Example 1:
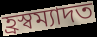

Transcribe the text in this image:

হ্ৰস্বম্যাদত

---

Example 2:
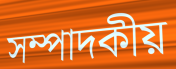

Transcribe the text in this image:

সম্পাদকীয়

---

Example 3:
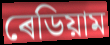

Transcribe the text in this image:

ৰেডিয়াম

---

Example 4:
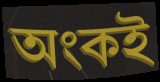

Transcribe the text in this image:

অংকই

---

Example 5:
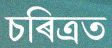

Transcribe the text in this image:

চৰিত্ৰত